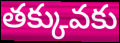
తక్కువకు